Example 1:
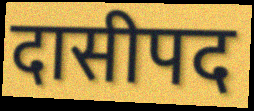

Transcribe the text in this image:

दासीपद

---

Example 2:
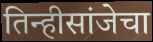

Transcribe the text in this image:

तिन्हीसांजेचा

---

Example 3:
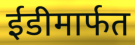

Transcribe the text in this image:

ईडीमार्फत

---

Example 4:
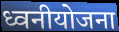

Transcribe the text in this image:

ध्वनीयोजना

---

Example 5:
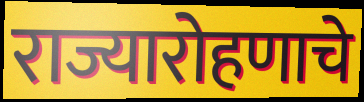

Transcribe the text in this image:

राज्यारोहणाचे